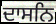
ਦਾਸਨਿ